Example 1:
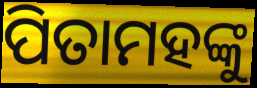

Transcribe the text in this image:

ପିତାମହଙ୍କୁ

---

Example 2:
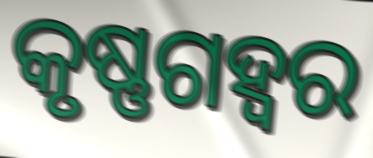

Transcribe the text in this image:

କୃଷ୍ଣଗହ୍ୱର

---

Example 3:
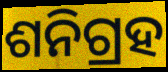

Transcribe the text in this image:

ଶନିଗ୍ରହ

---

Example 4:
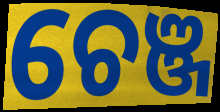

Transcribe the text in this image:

ଚେଞ୍ଜ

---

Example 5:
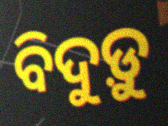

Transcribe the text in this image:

ବିଦୁଡ଼ୁ